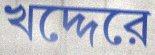
খদ্দেরে